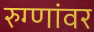
रुग्णांवर